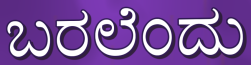
ಬರಲೆಂದು